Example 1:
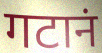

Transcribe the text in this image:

गटानं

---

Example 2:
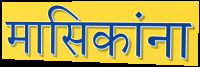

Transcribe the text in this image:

मासिकांना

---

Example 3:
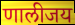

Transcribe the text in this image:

णालीजय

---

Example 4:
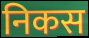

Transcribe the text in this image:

निकस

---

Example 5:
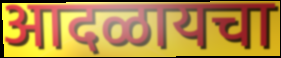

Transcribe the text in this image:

आदळायचा